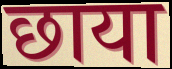
छाया